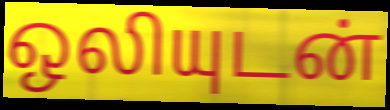
ஒலியுடன்